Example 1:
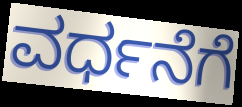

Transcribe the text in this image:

ವರ್ಧನೆಗೆ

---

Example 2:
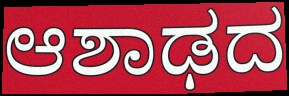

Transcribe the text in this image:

ಆಶಾಢದ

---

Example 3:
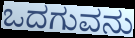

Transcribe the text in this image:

ಒದಗುವನು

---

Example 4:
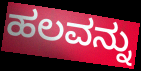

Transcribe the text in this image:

ಹಲವನ್ನು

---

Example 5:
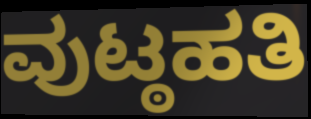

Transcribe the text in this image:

ವುಟ್ಠಹತಿ